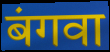
बंगवा